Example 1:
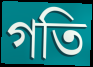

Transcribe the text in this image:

গতি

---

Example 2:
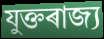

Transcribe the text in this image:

যুক্তৰাজ্য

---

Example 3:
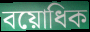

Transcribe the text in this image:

বয়োধিক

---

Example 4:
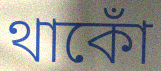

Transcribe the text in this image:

থাকোঁ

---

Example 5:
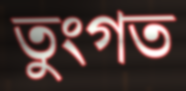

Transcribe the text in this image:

তুংগত